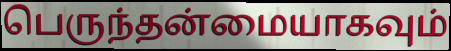
பெருந்தன்மையாகவும்